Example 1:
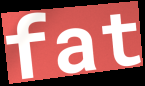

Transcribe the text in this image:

fat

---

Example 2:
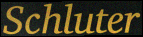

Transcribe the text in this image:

Schluter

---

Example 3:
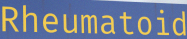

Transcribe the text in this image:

Rheumatoid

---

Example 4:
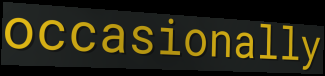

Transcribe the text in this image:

occasionally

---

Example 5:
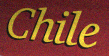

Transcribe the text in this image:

Chile